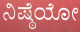
ನಿಷ್ಠೆಯೋ